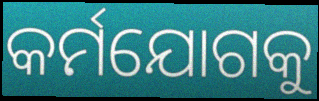
କର୍ମଯୋଗକୁ